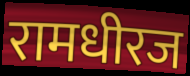
रामधीरज